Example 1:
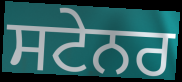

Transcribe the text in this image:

ਸਟੇਨਰ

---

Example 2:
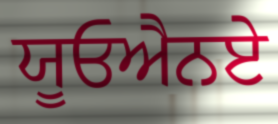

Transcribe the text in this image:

ਯੂਓਐਨਏ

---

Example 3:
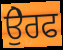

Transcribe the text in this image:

ਉੇਰਫ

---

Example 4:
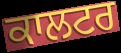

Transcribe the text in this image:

ਕਾਲਟਰ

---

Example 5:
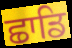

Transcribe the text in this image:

ਛਾਡਿ